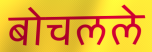
बोचलले